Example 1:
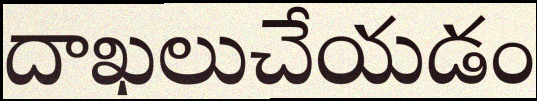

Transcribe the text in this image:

దాఖలుచేయడం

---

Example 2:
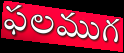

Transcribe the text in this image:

ఫలముగ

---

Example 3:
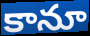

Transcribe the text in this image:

కానూ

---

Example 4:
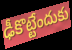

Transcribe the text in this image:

ఢీకొట్టేందుకు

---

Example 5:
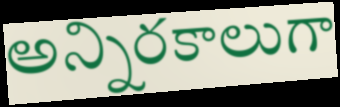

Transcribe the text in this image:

అన్నిరకాలుగా